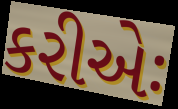
કરીએઃ